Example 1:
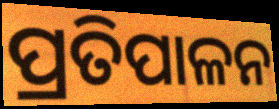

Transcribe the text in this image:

ପ୍ରତିପାଳନ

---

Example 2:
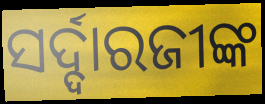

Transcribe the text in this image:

ସର୍ଦ୍ଦାରଜୀଙ୍କ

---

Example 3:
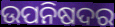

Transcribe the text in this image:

ଉପନିଷଦର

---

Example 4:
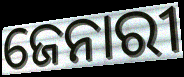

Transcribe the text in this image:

ଜେନାରୀ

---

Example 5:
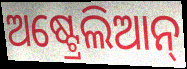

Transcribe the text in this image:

ଅଷ୍ଟ୍ରେଲିଆନ୍